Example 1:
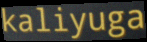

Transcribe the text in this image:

kaliyuga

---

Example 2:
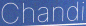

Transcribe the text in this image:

Chandi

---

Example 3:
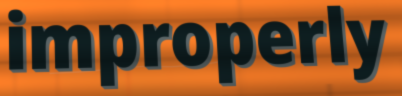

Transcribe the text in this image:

improperly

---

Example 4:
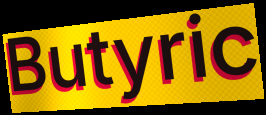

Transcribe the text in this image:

Butyric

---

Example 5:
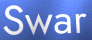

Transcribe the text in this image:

Swar